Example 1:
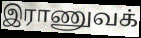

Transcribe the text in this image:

இராணுவக்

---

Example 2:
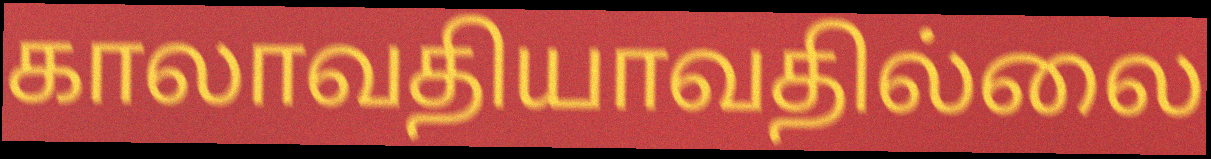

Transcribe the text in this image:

காலாவதியாவதில்லை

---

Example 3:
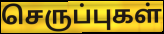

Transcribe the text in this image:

செருப்புகள்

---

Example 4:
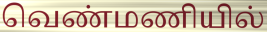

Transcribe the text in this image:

வெண்மணியில்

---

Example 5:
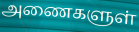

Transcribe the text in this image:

அணைகளுள்